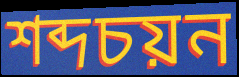
শব্দচয়ন